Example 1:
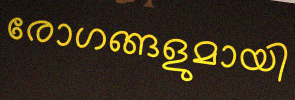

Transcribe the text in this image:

രോഗങ്ങളുമായി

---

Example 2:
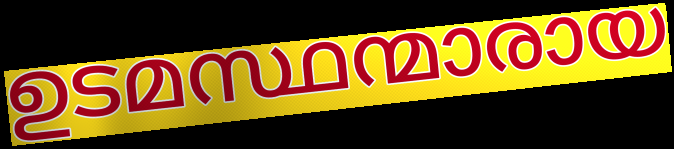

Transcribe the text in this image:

ഉടമസ്ഥന്മാരായ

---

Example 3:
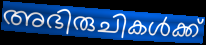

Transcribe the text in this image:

അഭിരുചികൾക്ക്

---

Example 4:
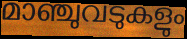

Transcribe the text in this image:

മാഞ്ചുവടുകളും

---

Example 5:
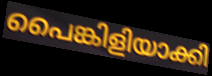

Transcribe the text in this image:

പൈങ്കിളിയാക്കി